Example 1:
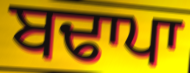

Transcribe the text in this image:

ਬਢਾਪਾ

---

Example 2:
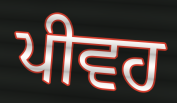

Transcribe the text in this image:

ਪੀਵਹ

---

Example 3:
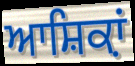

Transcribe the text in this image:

ਆਸ਼ਿਕ਼ਾਂ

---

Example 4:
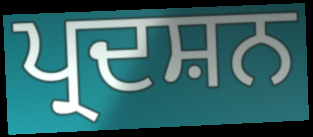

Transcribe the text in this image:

ਪ੍ਰਦਸ਼ਨ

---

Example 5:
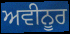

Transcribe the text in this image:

ਅਵੀਨੂਰ